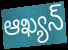
ఆఖ్యన్